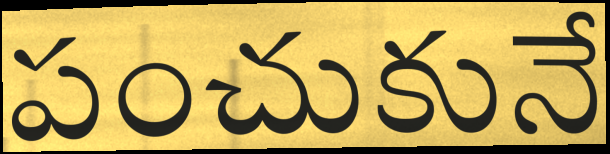
పంచుకునే